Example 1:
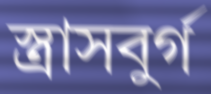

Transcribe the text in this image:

স্ত্রাসবুর্গ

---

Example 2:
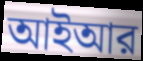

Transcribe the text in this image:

আইআর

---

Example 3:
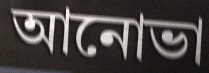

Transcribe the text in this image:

আনোভা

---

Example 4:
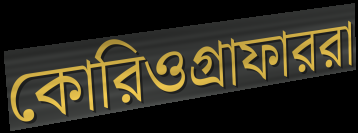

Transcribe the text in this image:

কোরিওগ্রাফাররা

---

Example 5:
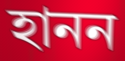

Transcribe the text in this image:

হানন